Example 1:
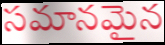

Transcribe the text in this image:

సమానమైన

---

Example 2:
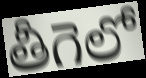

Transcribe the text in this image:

తీగెలో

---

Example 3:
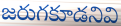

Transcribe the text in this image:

జరుగకూడనివి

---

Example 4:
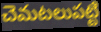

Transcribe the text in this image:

చెమటలుపట్టి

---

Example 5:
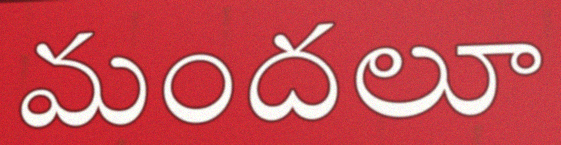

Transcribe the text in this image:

మందలూ